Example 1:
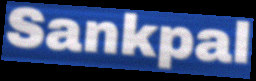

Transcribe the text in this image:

Sankpal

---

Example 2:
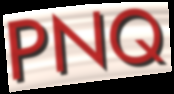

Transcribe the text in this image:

PNQ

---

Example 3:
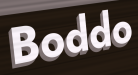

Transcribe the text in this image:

Boddo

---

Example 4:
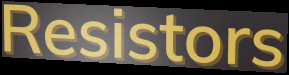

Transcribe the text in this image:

Resistors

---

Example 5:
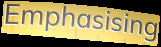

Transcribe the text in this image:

Emphasising